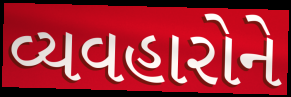
વ્યવહારોને